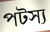
পটস্য